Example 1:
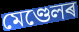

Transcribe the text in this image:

মেণ্ডেলৰ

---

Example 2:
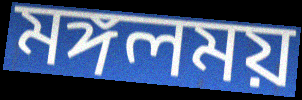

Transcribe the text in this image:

মঙ্গলময়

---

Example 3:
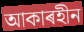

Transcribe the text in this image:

আকাৰহীন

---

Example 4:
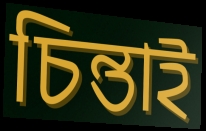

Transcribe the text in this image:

চিন্তাই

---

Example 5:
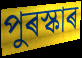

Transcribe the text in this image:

পুৰস্কাৰ